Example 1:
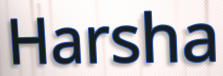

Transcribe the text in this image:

Harsha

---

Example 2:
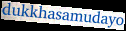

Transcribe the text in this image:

dukkhasamudayo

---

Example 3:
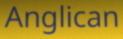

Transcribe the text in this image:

Anglican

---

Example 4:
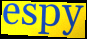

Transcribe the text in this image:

espy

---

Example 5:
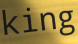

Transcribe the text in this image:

king